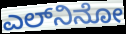
ಎಲ್‍ನಿನೋ